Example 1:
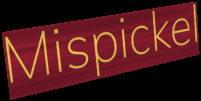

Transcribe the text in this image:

Mispickel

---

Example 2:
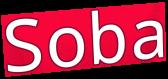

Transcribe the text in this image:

Soba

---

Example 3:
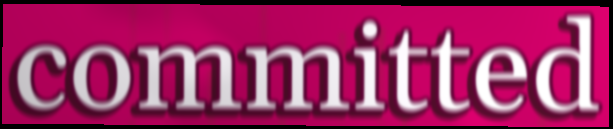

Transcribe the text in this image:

committed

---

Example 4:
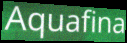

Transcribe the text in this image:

Aquafina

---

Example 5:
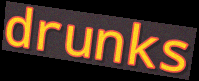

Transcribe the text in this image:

drunks